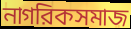
নাগরিকসমাজ